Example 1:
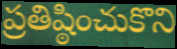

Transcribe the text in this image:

ప్రతిష్ఠించుకొని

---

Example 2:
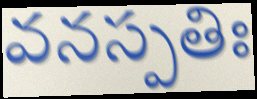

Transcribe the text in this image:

వనస్పతిః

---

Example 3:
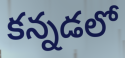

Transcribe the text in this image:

కన్నడలో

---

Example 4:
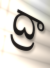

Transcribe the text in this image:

ద్రా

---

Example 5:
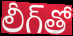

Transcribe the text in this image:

లీగ్‌తో